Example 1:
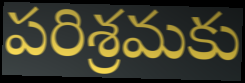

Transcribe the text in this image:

పరిశ్రమకు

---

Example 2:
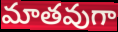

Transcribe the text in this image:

మాతవుగా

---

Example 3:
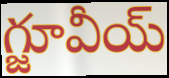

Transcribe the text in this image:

గ్జూవీయ్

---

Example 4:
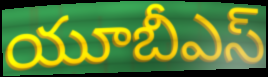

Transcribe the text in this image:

యూబీఎస్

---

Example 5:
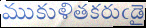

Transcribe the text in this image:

ముకుళితకరుఁడై